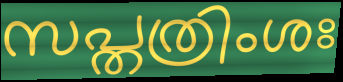
സപ്തത്രിംശഃ